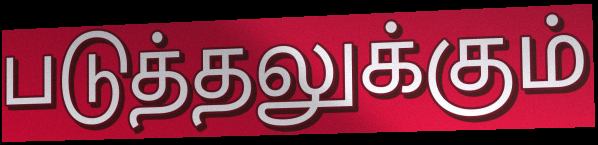
படுத்தலுக்கும்